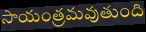
సాయంత్రమవుతుంది